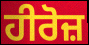
ਹੀਰੋਜ਼